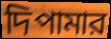
দিপামার